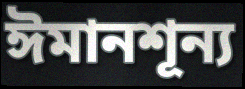
ঈমানশূন্য